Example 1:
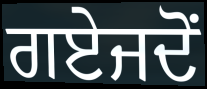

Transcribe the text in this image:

ਗਏਜਦੋਂ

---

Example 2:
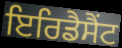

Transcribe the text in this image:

ਇਰਿਡੈਸੈਂਟ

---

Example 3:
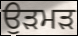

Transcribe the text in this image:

ਉੜਮੜ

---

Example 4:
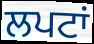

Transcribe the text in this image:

ਲਪਟਾਂ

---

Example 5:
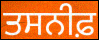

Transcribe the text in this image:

ਤਸਨੀਫ਼